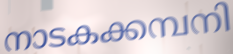
നാടകക്കമ്പനി